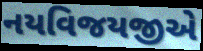
નયવિજયજીએ